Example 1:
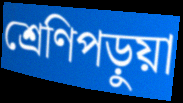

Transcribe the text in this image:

শ্রেণিপড়ুয়া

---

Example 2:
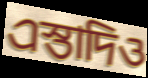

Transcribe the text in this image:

এস্তাদিও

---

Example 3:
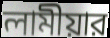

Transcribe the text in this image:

লামীয়ার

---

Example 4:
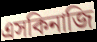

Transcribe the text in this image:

এসকিনাজি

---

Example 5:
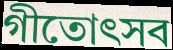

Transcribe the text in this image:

গীতোৎসব